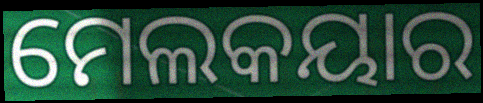
ମେଲକୟାର